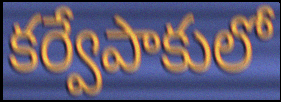
కర్వేపాకులో